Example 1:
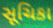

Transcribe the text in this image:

સૂચિકા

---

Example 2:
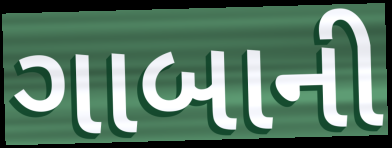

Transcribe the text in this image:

ગાબાની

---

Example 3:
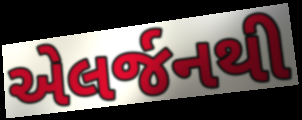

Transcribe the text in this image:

એલર્જનથી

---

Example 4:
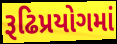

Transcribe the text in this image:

રૂઢિપ્રયોગમાં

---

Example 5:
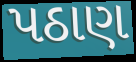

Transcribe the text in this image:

પઠાણ